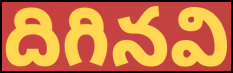
దిగినవి